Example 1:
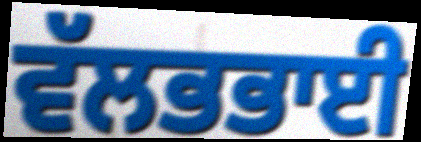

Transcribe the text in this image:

ਵੱਲਭਭਾਈ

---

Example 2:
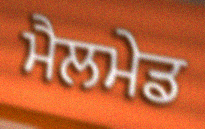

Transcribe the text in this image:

ਮੈਲਮੇਡ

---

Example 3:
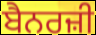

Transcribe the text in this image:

ਬੈਨਰਜ਼ੀ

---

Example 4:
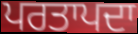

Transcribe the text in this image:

ਪਰਤਾਪਦਾ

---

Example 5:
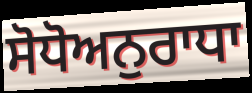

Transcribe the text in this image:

ਸੋਧੋਅਨੁਰਾਧਾ